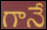
గానే